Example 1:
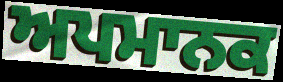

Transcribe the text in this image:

ਅਪਮਾਨਕ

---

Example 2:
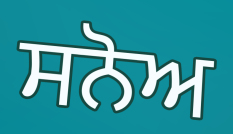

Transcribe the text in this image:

ਸਨੋਅ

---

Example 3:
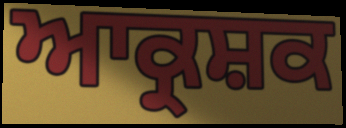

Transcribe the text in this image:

ਆਕ੍ਰਸ਼ਕ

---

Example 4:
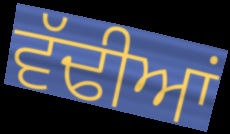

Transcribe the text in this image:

ਵੱਢੀਆਂ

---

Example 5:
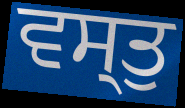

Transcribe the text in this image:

ਵਸ੍ਤੁ